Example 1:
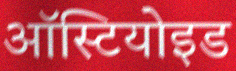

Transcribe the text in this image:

ऑस्टियोइड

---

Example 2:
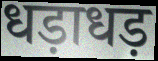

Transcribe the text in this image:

धड़ाधड़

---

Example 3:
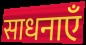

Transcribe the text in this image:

साधनाएँ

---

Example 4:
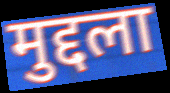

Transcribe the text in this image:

मुद्दला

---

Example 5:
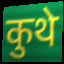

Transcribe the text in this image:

कुथे